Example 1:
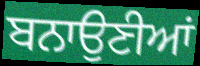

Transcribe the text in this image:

ਬਨਾਉਣੀਆਂ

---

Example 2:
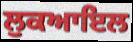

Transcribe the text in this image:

ਲੁਕਆਇਲ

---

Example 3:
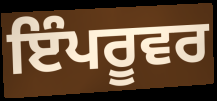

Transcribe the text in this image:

ਇੰਪਰੂਵਰ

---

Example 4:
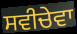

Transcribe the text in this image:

ਸਵੀਚੇਵਾ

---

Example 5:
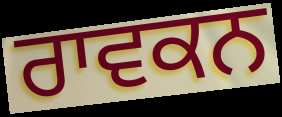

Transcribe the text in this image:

ਰਾਵਕਨ